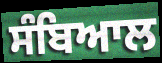
ਸੰਬਿਆਲ